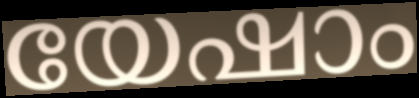
യേഷാം